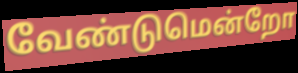
வேண்டுமென்றோ